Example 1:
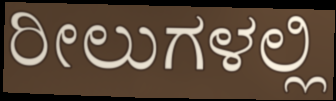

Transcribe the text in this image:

ರೀಲುಗಳಲ್ಲಿ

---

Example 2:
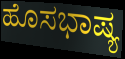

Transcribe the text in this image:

ಹೊಸಭಾಷ್ಯ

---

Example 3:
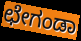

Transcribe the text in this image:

ಛೇಗಂಡಾ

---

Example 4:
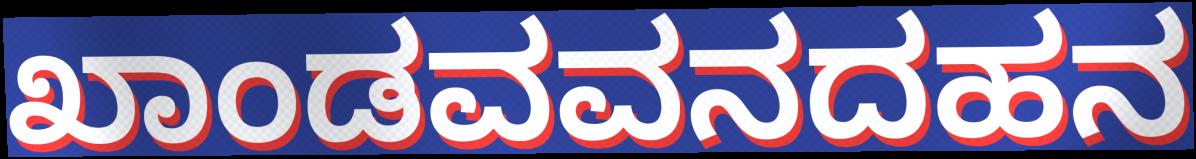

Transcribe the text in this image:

ಖಾಂಡವವನದಹನ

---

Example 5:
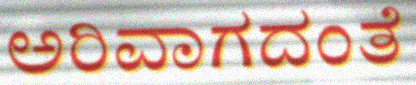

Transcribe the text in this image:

ಅರಿವಾಗದಂತೆ